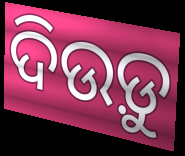
ଦିଉଡ଼ୁ